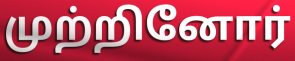
முற்றினோர்